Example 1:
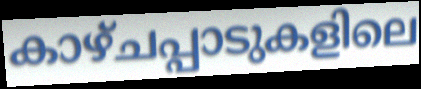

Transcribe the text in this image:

കാഴ്ചപ്പാടുകളിലെ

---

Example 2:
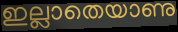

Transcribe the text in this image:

ഇല്ലാതെയാണു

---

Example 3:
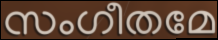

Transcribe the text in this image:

സംഗീതമേ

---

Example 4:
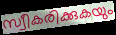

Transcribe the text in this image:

സ്വീകരിക്കുകയും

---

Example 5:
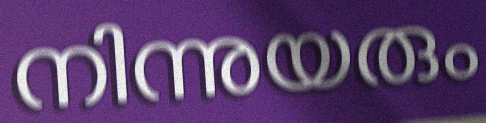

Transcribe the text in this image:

നിന്നുയരും